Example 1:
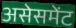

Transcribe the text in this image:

असेसमेंट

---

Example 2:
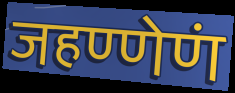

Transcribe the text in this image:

जहण्णेणं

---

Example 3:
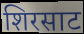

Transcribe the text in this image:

शिरसाट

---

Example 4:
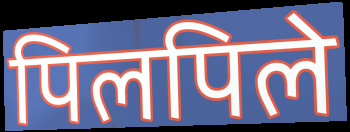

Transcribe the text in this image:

पिलपिले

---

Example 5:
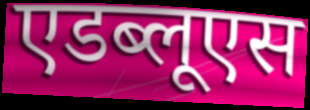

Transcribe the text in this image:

एडब्लूएस